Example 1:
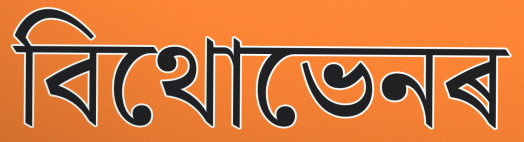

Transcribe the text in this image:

বিথোভেনৰ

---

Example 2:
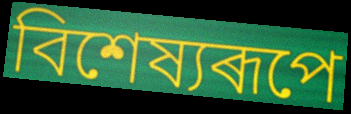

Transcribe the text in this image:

বিশেষ্যৰূপে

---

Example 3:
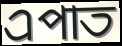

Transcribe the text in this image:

এপাত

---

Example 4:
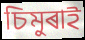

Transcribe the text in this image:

চিমুৰাই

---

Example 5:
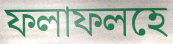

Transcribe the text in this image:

ফলাফলহে